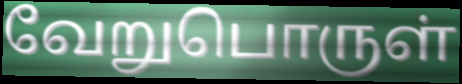
வேறுபொருள்